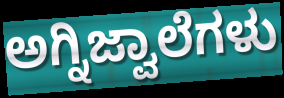
ಅಗ್ನಿಜ್ವಾಲೆಗಳು